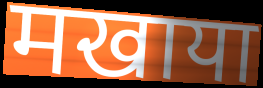
मखाया